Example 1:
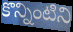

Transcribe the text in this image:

కొన్నింటిని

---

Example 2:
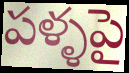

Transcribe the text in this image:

పళ్ళపై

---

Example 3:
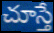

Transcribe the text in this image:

చూస్తే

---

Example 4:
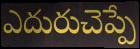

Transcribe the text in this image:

ఎదురుచెప్పే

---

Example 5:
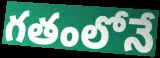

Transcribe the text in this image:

గతంలోనే